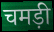
चमड़ी